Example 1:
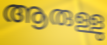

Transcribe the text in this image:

ആരുള്ളു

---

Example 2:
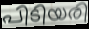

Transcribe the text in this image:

പിടിയരി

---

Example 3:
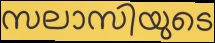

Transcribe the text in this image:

സലാസിയുടെ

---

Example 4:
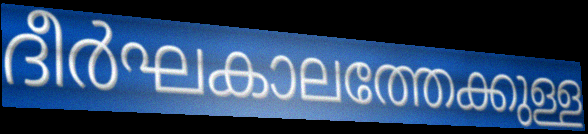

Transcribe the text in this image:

ദീർഘകാലത്തേക്കുള്ള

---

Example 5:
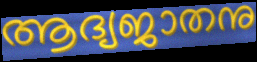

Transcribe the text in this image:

ആദ്യജാതനു